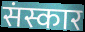
संस्‍कार